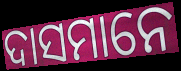
ଦାସମାନେ